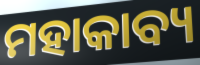
ମହାକାବ୍ୟ